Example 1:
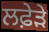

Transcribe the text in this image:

ਲਫ਼ੇੜੇ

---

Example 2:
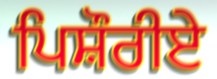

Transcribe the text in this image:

ਪਿਸ਼ੌਰੀਏ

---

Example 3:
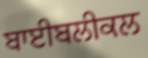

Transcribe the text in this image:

ਬਾਈਬਲੀਕਲ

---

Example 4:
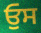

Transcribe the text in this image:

ਓੁਸ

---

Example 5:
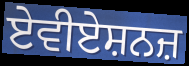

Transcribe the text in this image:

ਏਵੀਏਸ਼ਨਜ਼